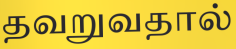
தவறுவதால்